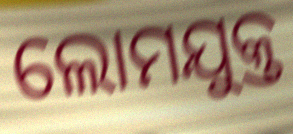
ଲୋମଯୁକ୍ତ